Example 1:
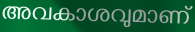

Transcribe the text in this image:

അവകാശവുമാണ്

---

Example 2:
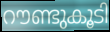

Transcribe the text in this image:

റൗണ്ടുകൂടി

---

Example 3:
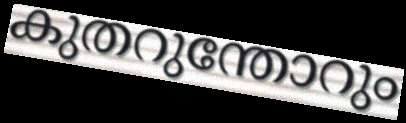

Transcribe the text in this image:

കുതറുന്തോറും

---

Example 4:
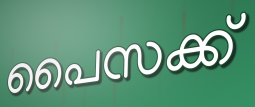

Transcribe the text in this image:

പൈസക്ക്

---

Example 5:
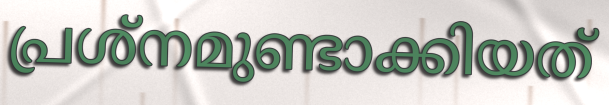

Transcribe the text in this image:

പ്രശ്നമുണ്ടാക്കിയത്